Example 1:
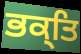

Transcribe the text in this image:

ਭਕ੍ਤਿ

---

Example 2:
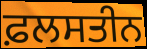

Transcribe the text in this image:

ਫ਼ਲਸਤੀਨ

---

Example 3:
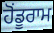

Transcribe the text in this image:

ਹੋਂਡੂਰਾਮ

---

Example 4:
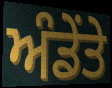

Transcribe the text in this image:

ਅੰਡੇਂਤੇ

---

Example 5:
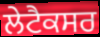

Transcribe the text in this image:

ਲੇਟੈਕਸਰ